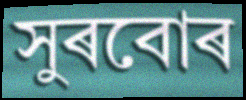
সুৰবোৰ